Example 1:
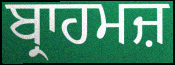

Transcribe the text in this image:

ਬ੍ਰਾਹਮਜ਼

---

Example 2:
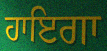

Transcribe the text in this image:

ਹਾਇਗਾ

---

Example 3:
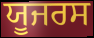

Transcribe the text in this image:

ਯੂਜਰਸ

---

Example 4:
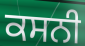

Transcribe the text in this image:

ਕਸਨੀ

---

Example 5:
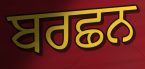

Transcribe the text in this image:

ਬਰਛਨ